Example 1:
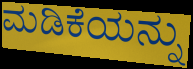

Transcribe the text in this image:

ಮಡಿಕೆಯನ್ನು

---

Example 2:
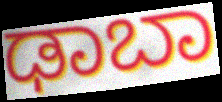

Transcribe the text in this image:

ಢಾಬಾ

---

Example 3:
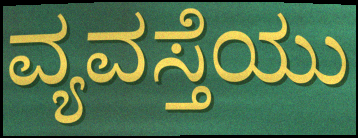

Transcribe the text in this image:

ವ್ಯವಸ್ತೆಯು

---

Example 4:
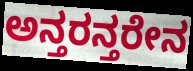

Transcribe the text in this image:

ಅನ್ತರನ್ತರೇನ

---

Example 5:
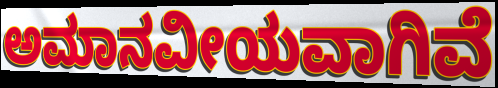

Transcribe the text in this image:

ಅಮಾನವೀಯವಾಗಿವೆ